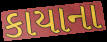
કાયાના